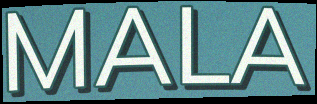
MALA